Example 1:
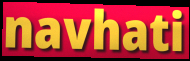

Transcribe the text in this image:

navhati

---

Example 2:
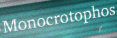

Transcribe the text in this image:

Monocrotophos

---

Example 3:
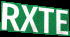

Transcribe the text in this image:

RXTE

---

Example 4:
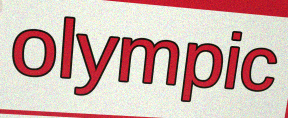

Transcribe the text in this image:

olympic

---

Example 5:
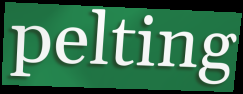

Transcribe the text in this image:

pelting